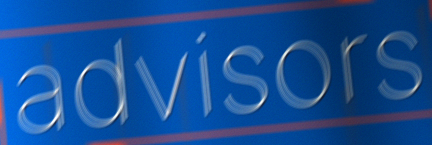
advisors